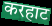
करहाट